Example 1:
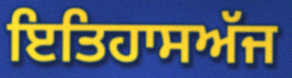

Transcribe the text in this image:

ਇਤਿਹਾਸਅੱਜ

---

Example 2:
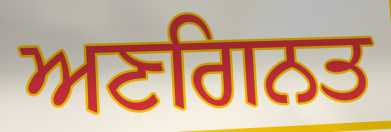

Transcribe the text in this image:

ਅਣਗਿਨਤ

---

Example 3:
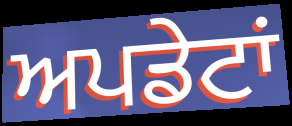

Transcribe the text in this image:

ਅਪਡੇਟਾਂ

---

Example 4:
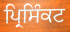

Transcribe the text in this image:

ਪ੍ਰਿਸਿੰਕਟ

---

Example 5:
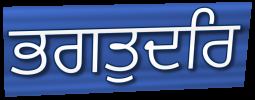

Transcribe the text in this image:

ਭਗਤੁਦਰਿ